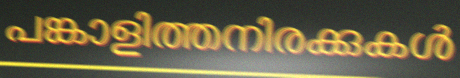
പങ്കാളിത്തനിരക്കുകൾ